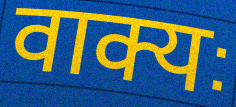
वाक्यः